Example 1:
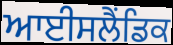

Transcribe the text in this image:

ਆਈਸਲੈਂਡਿਕ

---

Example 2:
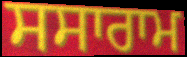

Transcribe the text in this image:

ਸਸਾਰਾਮ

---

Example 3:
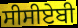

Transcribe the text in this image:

ਸੀਸੀਏਬੀ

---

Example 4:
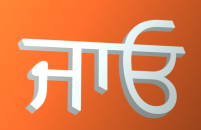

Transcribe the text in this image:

ਜਾਓ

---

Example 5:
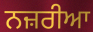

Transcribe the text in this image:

ਨਜ਼ਰੀਆ